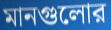
মানগুলোর